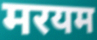
मरयम